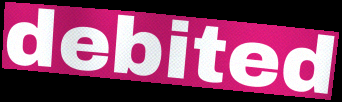
debited